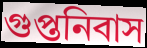
গুপ্তনিবাস